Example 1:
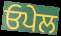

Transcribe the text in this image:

ਓਪੇਲ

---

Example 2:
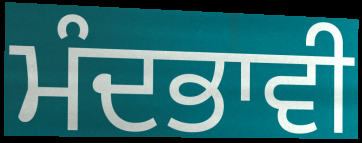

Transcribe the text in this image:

ਮੰਦਭਾਵੀ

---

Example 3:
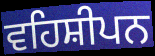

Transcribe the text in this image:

ਵਹਿਸ਼ੀਪਨ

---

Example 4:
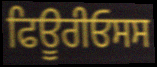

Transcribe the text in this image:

ਫਿਊਰੀਓਸਸ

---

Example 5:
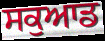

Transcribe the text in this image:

ਸਕੁਆਡ